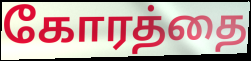
கோரத்தை